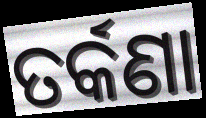
ତର୍କଣା